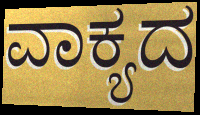
ವಾಕ್ಯದ